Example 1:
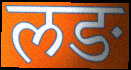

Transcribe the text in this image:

लङ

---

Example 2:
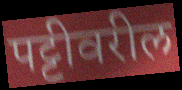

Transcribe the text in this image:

पट्टीवरील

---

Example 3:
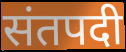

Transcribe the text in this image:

संतपदी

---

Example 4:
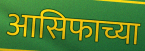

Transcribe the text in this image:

आसिफाच्या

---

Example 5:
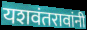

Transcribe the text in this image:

यशवंतरावांनी